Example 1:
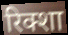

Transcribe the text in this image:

रिक्शा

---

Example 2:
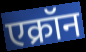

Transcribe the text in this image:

एक्रॉन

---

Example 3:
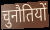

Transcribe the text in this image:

चुनौतियों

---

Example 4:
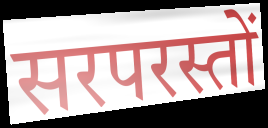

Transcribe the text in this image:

सरपरस्तों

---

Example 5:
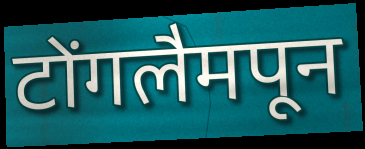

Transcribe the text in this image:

टोंगलैमपून